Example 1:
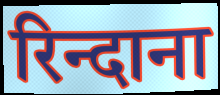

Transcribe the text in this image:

रिन्दाना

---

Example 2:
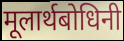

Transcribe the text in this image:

मूलार्थबोधिनी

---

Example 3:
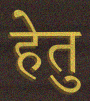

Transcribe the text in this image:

हेतु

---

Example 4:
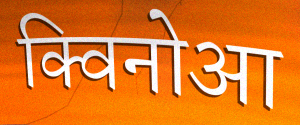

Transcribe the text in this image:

क्विनोआ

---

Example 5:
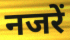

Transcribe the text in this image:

नजरें